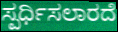
ಸ್ಪರ್ಧಿಸಲಾರದೆ